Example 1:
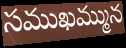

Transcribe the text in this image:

సముఖమ్మున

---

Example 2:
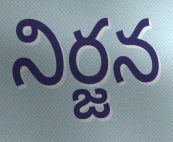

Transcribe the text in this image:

నిర్జన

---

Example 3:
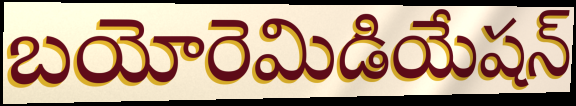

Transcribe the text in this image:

బయోరెమిడియేషన్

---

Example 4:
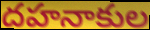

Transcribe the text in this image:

దహనాకుల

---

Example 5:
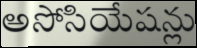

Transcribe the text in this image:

అసోసియేషన్లు